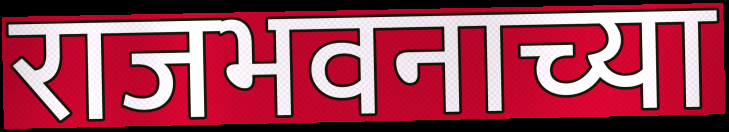
राजभवनाच्या